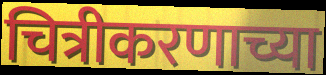
चित्रीकरणाच्या